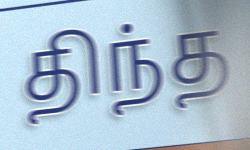
திந்த